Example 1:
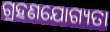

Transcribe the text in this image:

ଗ୍ରହଣଯୋଗ୍ୟତା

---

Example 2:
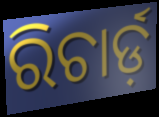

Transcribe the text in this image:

ରିଚାର୍ଡ଼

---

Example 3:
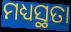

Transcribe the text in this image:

ମଧ୍ୟସ୍ଥତା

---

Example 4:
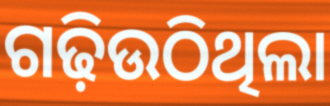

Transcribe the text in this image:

ଗଢ଼ିଉଠିଥିଲା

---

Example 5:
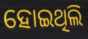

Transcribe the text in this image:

ହୋଇଥିଲି